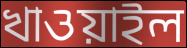
খাওয়াইল